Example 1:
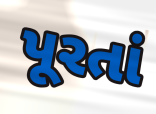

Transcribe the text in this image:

પૂરતાં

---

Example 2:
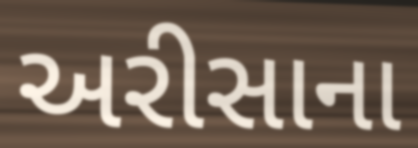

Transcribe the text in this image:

અરીસાના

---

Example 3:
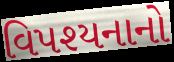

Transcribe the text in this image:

વિપશ્યનાનો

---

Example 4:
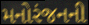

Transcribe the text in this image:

મનોરંજનની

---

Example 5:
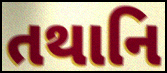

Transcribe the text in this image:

તથાનિ